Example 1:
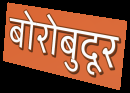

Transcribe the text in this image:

बोरोबुदूर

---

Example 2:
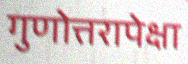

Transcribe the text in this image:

गुणोत्तरापेक्षा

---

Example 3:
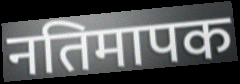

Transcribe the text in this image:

नतिमापक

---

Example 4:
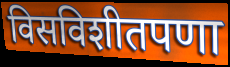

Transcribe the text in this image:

विसविशीतपणा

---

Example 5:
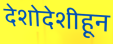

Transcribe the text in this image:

देशोदेशीहून